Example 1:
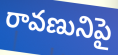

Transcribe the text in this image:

రావణునిపై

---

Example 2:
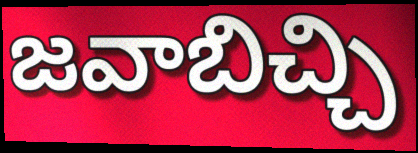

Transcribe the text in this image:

జవాబిచ్చి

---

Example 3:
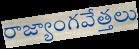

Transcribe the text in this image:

రాజ్యాంగవేత్తలు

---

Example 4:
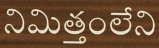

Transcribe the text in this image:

నిమిత్తంలేని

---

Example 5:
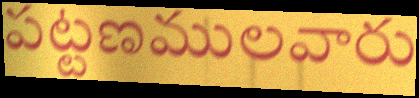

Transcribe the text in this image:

పట్టణములవారు